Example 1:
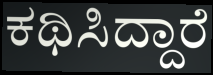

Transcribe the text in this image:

ಕಥಿಸಿದ್ದಾರೆ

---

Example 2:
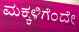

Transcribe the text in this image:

ಮಕ್ಕಳಿಗೆಂದೇ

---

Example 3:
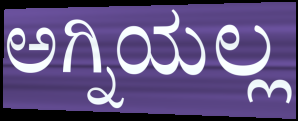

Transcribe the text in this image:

ಅಗ್ನಿಯಲ್ಲ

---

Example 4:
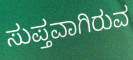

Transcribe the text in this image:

ಸುಪ್ತವಾಗಿರುವ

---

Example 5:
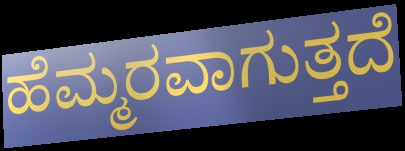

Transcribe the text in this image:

ಹೆಮ್ಮರವಾಗುತ್ತದೆ